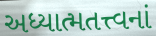
અધ્યાત્મતત્ત્વનાં